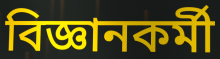
বিজ্ঞানকর্মী